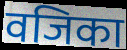
वजिका